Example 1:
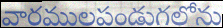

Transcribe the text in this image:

వారములపండుగలోను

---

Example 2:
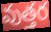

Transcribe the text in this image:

వుత్తర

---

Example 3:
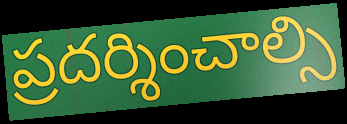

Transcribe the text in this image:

ప్రదర్శించాల్సి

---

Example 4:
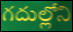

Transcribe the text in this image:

గదుల్లోని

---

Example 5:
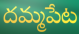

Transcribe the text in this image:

దమ్మపేట